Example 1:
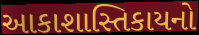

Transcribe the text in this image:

આકાશાસ્તિકાયનો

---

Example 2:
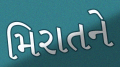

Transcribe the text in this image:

મિરાતને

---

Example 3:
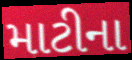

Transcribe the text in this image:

માટીના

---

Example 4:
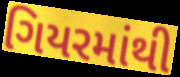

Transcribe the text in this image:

ગિયરમાંથી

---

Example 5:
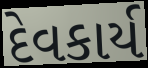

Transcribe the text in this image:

દેવકાર્ય